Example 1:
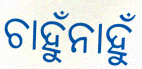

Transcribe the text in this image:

ଚାହୁଁନାହୁଁ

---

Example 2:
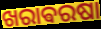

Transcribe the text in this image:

ଖରାଵରଷା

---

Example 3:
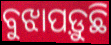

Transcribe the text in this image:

ବୁଝାପଡ଼ୁଛି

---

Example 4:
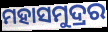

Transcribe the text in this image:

ମହାସମୁଦ୍ରର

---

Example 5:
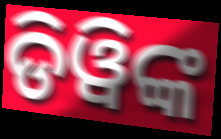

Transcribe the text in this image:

ଡିୱିଙ୍କ